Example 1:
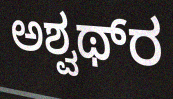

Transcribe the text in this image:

ಅಶ್ವಥ್‌ರ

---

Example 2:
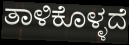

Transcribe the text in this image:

ತಾಳಿಕೊಳ್ಳದೆ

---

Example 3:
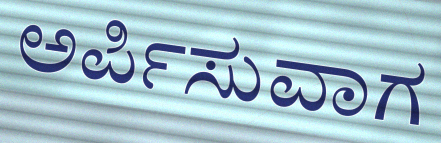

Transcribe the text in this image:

ಅರ್ಪಿಸುವಾಗ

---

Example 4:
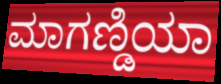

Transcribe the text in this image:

ಮಾಗಣ್ಡಿಯಾ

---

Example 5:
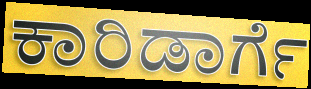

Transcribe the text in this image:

ಕಾರಿಡಾರ್ಗೆ